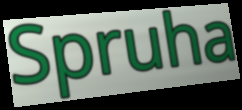
Spruha